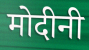
मोदीनी